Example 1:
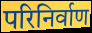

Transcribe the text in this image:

परिनिर्वाण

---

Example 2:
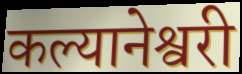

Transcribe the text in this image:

कल्यानेश्वरी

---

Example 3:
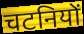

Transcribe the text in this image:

चटनियों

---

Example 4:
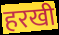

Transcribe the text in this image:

हरखी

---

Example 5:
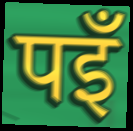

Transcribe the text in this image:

पइँ